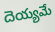
దెయ్యమే